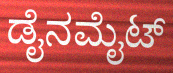
ಡೈನಮೈಟ್